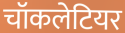
चॉकलेटियर